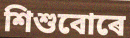
শিশুবোৰে